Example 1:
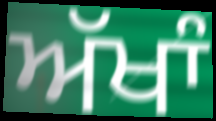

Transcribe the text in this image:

ਅੱਖਾੰ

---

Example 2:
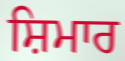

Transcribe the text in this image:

ਸ਼ਿਮਾਰ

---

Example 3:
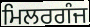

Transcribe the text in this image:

ਮਿਲਰਗੰਜ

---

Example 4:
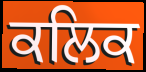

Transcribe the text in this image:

ਕਲਿਕ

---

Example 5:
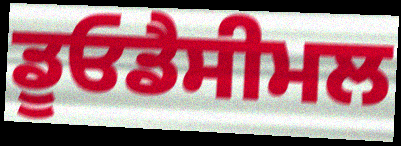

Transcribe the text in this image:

ਡੂਓਡੈਸੀਮਲ